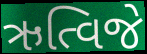
ઋત્વિજે